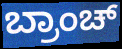
ಬ್ರಾಂಚ್